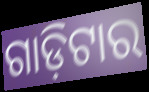
ଗାଡ଼ିଟାର